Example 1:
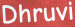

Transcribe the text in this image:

Dhruvi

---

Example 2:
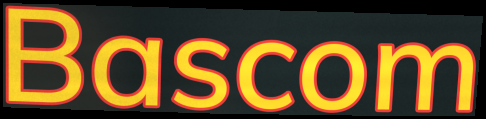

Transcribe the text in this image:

Bascom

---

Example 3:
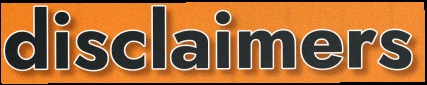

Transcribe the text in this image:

disclaimers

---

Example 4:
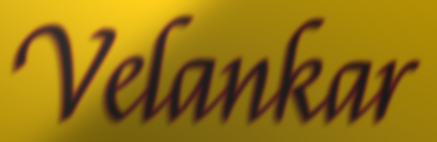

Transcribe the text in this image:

Velankar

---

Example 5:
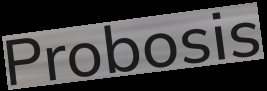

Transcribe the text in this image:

Probosis